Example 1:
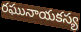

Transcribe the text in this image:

రఘునాయకస్య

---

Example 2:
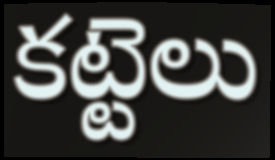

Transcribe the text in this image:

కట్టెలు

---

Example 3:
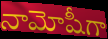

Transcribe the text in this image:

నామోషీగా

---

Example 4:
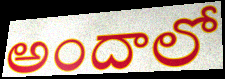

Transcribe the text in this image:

అందాలో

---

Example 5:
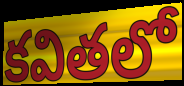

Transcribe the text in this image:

కవితలో